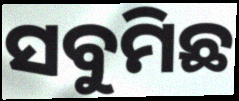
ସବୁମିଛ